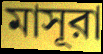
মাসূরা